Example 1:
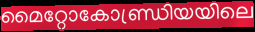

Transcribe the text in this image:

മൈറ്റോകോണ്ഡ്രിയയിലെ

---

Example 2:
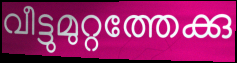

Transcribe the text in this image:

വീട്ടുമുറ്റത്തേക്കു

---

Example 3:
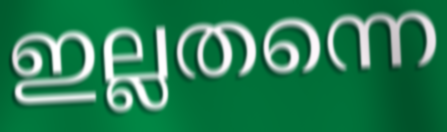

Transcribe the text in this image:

ഇല്ലതന്നെ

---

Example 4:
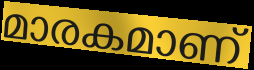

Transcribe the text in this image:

മാരകമാണ്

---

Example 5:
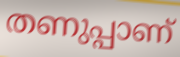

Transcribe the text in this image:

തണുപ്പാണ്